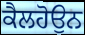
ਕੈਲਹੋਉਨ